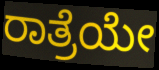
ರಾತ್ರೆಯೇ